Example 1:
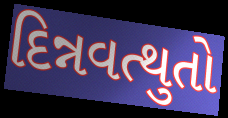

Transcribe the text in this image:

દિન્નવત્થુતો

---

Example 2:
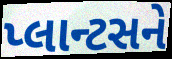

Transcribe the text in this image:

પ્લાન્ટસને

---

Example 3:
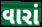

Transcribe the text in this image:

વારાં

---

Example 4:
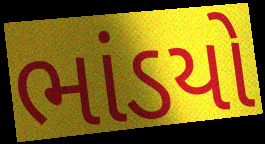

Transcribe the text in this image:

ભાંડયો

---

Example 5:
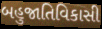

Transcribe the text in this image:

બહુજાતિવિકાસી